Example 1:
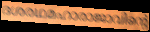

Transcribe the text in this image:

ദശരഥമഹാരാജാവിന്റെ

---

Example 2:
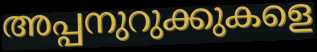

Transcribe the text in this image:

അപ്പനുറുക്കുകളെ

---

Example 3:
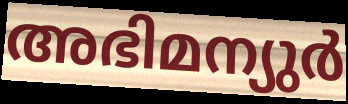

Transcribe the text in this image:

അഭിമന്യുർ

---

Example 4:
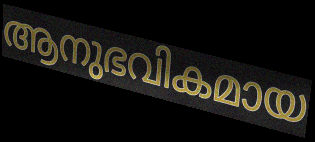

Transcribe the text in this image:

ആനുഭവികമായ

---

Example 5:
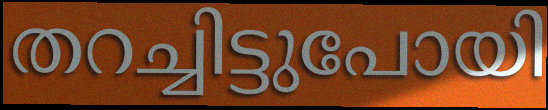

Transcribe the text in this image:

തറച്ചിട്ടുപോയി